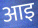
आइ